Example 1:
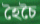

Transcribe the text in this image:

হৈচৈ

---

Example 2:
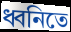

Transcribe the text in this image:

ধ্বনিতে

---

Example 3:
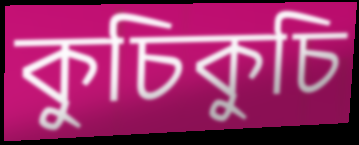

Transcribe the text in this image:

কুচিকুচি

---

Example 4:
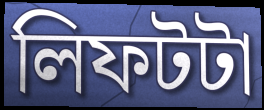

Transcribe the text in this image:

লিফটটা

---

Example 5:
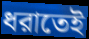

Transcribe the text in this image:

ধরাতেই